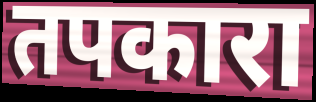
तपकारा